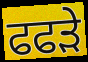
ਫਫਡ਼ੇ